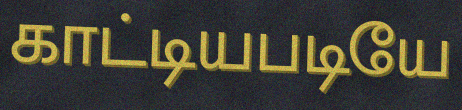
காட்டியபடியே